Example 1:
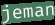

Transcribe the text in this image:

jeman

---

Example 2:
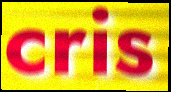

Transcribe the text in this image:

cris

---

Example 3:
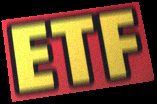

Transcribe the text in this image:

ETF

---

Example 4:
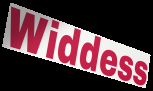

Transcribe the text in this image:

Widdess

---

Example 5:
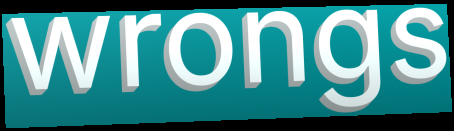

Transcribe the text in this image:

wrongs